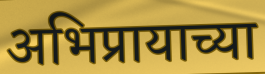
अभिप्रायाच्या